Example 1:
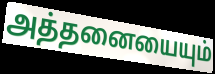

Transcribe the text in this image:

அத்தனையையும்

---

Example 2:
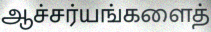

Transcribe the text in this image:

ஆச்சர்யங்களைத்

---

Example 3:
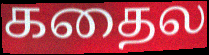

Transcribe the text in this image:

கதைல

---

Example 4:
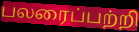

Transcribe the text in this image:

பலரைப்பற்றி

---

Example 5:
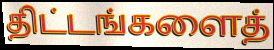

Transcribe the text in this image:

திட்டங்களைத்